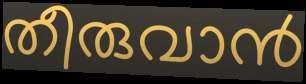
തീരുവാൻ